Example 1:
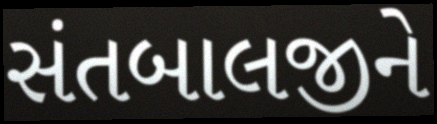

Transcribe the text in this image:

સંતબાલજીને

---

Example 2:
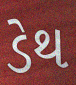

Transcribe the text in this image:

ડેથ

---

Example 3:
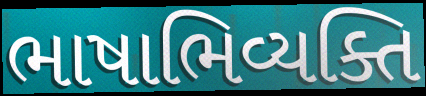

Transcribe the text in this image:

ભાષાભિવ્યક્તિ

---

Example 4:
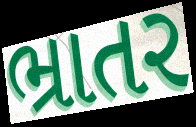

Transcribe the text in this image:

ભ્રાતર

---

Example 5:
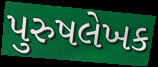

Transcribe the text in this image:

પુરુષલેખક